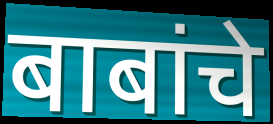
बाबांचे